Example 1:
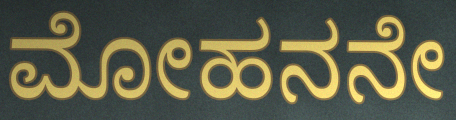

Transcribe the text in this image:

ಮೋಹನನೇ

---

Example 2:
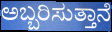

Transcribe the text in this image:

ಅಬ್ಬರಿಸುತ್ತಾನೆ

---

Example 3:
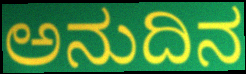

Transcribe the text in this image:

ಅನುದಿನ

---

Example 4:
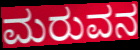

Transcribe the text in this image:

ಮರುವನ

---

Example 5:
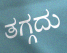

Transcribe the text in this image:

ತಗ್ಗದು